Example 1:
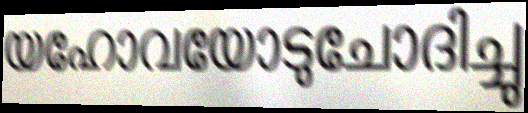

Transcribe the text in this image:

യഹോവയോടുചോദിച്ചു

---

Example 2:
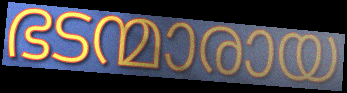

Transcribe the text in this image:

ഭടന്മാരായ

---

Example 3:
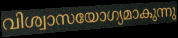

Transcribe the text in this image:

വിശ്വാസയോഗ്യമാകുന്നു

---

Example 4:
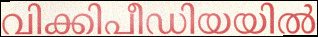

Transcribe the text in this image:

വിക്കിപീഡിയയിൽ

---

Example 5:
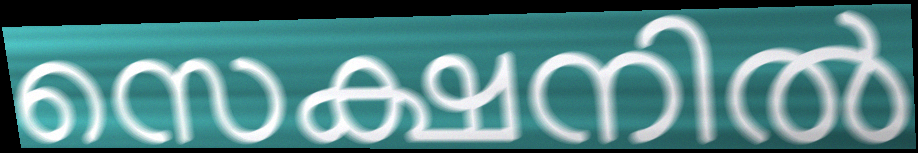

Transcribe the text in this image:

സെക്ഷനിൽ